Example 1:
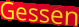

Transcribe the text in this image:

Gessen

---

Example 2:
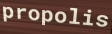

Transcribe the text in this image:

propolis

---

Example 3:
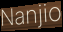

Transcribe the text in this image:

Nanjio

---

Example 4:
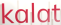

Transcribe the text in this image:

kalat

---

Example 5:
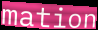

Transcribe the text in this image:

mation